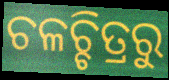
ଚଳଚ୍ଚିତ୍ରରୁ